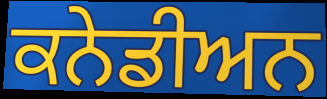
ਕਨੇਡੀਅਨ